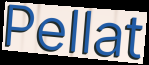
Pellat